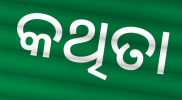
କଥିତା